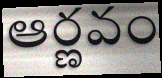
ఆర్ణవం